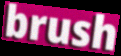
brush